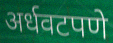
अर्धवटपणे